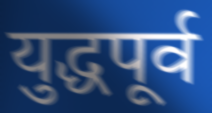
युद्धपूर्व